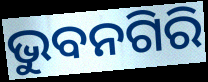
ଭୁବନଗିରି